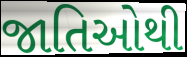
જાતિઓથી